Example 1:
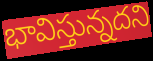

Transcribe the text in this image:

భావిస్తున్నదని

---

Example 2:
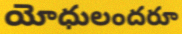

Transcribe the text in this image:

యోధులందరూ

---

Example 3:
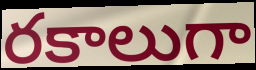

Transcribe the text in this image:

రకాలుగా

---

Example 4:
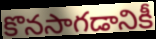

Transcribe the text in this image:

కొనసాగడానికీ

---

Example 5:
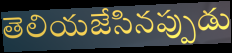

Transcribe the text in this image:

తెలియజేసినప్పుడు